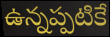
ఉన్నప్పటికే